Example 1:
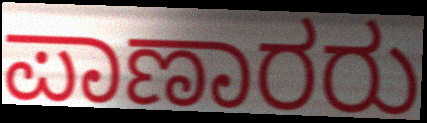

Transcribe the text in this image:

ಪಾಣಾರರು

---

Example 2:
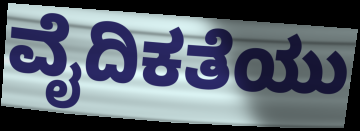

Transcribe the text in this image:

ವೈದಿಕತೆಯು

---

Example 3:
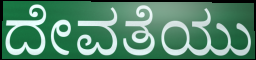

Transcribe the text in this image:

ದೇವತೆಯು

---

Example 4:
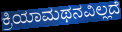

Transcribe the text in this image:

ಕ್ರಿಯಾಮಥನವಿಲ್ಲದೆ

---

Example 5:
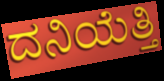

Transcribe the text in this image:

ದನಿಯೆತ್ತಿ